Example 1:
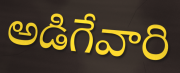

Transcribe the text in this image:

అడిగేవారి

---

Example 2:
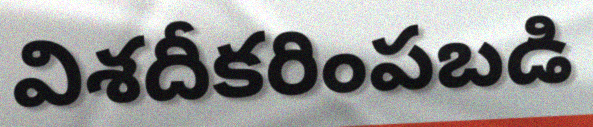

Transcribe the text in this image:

విశదీకరింపబడి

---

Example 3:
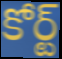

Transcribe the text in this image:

కోర్ట్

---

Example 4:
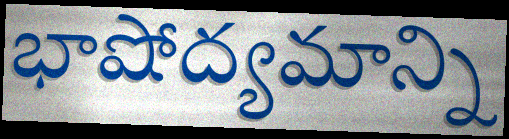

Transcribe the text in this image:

భాషోద్యమాన్ని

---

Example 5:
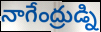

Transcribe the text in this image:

నాగేంద్రుడ్ని